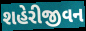
શહેરીજીવન